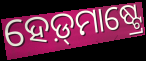
ହେଡ଼୍‍ମାଷ୍ଟ୍ରେ